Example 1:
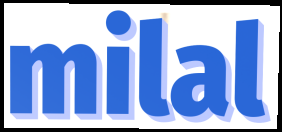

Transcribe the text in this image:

milal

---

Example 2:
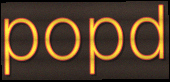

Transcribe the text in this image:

popd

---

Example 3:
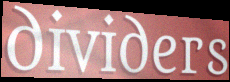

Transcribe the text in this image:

dividers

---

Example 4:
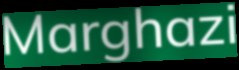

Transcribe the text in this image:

Marghazi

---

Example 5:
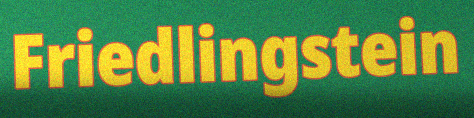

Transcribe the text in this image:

Friedlingstein